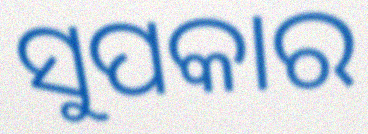
ସୁପକାର